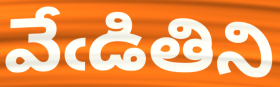
వేఁడితిని